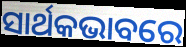
ସାର୍ଥକଭାବରେ